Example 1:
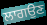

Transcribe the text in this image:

ਲਾਗਉਣ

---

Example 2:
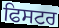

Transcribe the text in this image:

ਫਿਸਟਰ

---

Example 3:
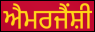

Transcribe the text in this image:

ਐਮਰਜੈਂਸ਼ੀ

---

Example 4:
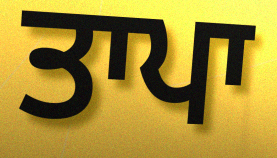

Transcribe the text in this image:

ਤਾਪਾ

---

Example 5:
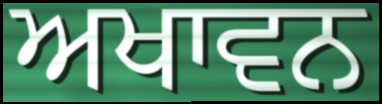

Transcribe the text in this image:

ਅਖਾਵਨ